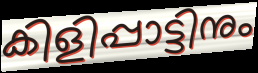
കിളിപ്പാട്ടിനും